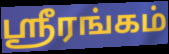
ஸ்ரீரங்கம்